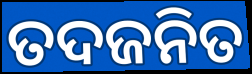
ତଦଜନିତ